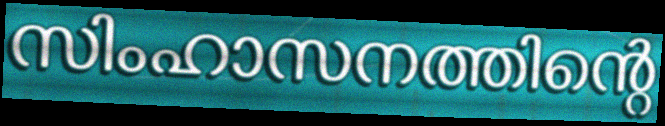
സിംഹാസനത്തിന്റെ